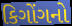
કિગોંગનો